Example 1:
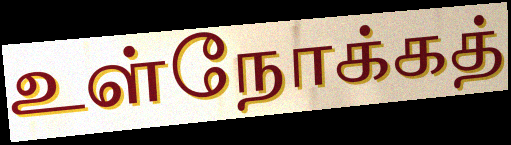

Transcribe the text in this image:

உள்நோக்கத்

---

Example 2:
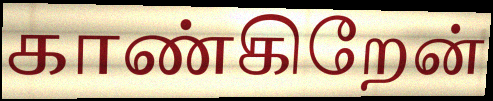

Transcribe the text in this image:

காண்கிறேன்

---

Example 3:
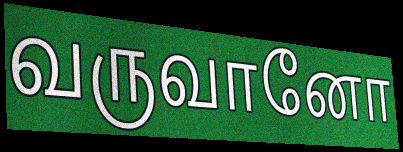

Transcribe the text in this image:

வருவானோ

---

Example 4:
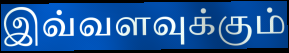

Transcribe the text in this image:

இவ்வளவுக்கும்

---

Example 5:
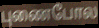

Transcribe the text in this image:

புணைபோல